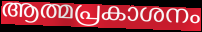
ആത്മപ്രകാശനം